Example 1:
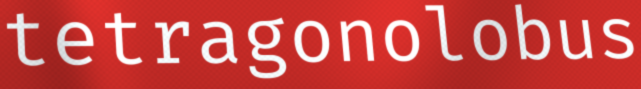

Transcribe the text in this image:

tetragonolobus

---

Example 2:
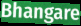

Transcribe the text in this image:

Bhangare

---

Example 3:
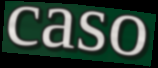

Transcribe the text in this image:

caso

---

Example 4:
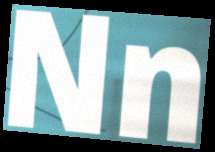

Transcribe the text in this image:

Nn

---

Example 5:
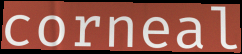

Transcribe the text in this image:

corneal